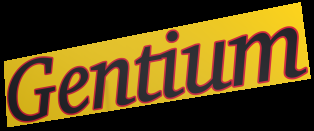
Gentium